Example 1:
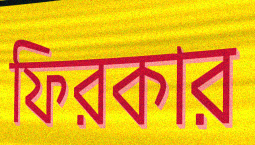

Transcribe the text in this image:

ফিরকার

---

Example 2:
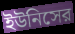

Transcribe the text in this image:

ইউনিসের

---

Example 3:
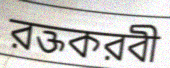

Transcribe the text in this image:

রক্তকরবী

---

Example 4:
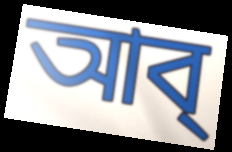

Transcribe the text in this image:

আব্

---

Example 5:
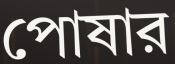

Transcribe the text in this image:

পোষার